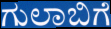
ಗುಲಾಬಿಗೆ